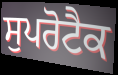
ਸੁਪਰੋਟੈਕ